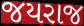
જયરાજ